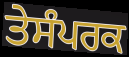
ਤੇਸੰਪਰਕ